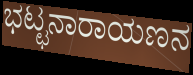
ಭಟ್ಟನಾರಾಯಣನ